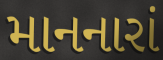
માનનારાં